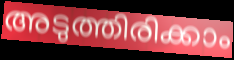
അടുത്തിരിക്കാം